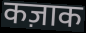
कज़ाक